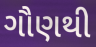
ગૌણથી